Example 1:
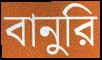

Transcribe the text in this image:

বানুরি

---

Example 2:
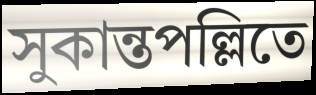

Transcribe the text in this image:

সুকান্তপল্লিতে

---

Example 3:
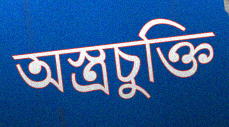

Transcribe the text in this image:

অস্ত্রচুক্তি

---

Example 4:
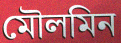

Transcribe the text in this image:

মৌলমিন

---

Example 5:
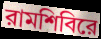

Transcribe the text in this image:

রামশিবিরে